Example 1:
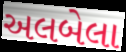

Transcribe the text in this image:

અલબેલા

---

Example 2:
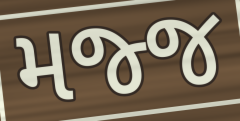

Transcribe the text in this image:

મજ્જ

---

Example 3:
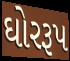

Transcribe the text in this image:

ઘોરરૂપ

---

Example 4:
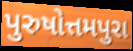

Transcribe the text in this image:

પુરુષોત્તમપુરા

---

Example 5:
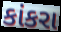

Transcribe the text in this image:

કાંકરા